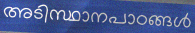
അടിസ്ഥാനപാഠങ്ങൾ